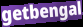
getbengal